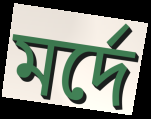
মর্দে